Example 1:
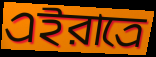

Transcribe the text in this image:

এইরাত্রে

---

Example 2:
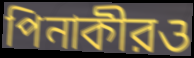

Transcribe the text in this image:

পিনাকীরও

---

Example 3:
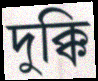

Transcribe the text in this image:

দুক্কি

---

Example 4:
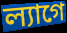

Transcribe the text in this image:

ল্যাগে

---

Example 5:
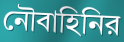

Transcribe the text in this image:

নৌবাহিনির